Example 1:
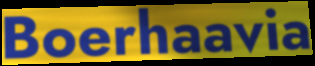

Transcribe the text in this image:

Boerhaavia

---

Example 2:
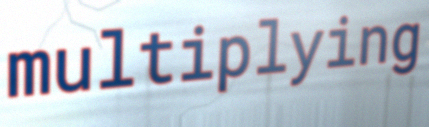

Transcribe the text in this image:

multiplying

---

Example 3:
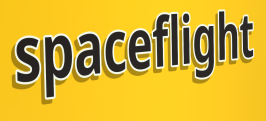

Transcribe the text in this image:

spaceflight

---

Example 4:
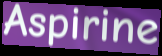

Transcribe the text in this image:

Aspirine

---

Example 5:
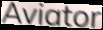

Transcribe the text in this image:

Aviator